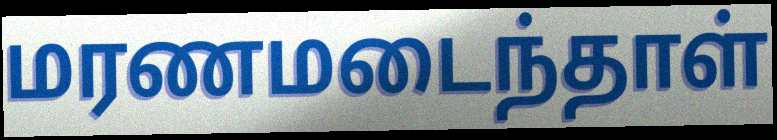
மரணமடைந்தாள்